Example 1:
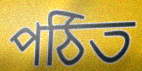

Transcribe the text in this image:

পঠিত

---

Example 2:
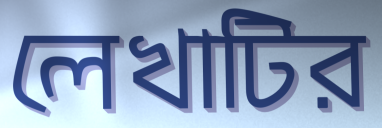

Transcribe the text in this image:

লেখাটির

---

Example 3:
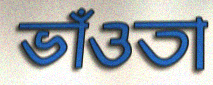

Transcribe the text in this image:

ভাঁওতা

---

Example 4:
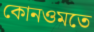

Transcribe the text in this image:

কোনওমতে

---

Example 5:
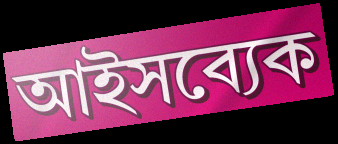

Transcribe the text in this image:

আইসব্যেক